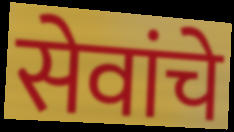
सेवांचे